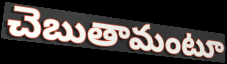
చెబుతామంటూ